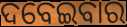
ଦବେଇବାର